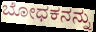
ಬೋಧಕನನ್ನು